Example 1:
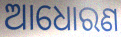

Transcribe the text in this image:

ଆଧୋରଣ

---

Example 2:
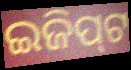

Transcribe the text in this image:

ଇଜିପ୍‌ଟ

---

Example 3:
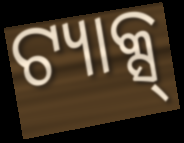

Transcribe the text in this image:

ଟ୍ୟାକ୍ସ୍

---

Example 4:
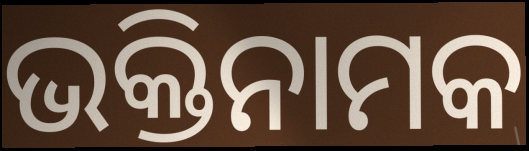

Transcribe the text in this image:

ଭକ୍ତିନାମକ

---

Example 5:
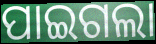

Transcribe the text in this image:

ପାଇଗଲା